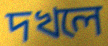
দখলে